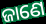
ଜାଣେ